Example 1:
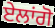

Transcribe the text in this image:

ਏਲਾਂਗੋ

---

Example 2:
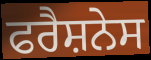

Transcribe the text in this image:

ਫਰੈਸ਼ਨੇਸ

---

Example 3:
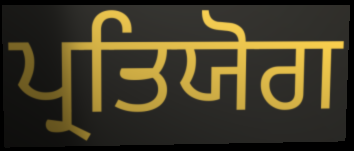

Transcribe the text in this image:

ਪ੍ਰਤਿਯੋਗ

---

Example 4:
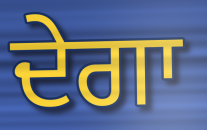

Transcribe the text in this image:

ਦੇਗਾ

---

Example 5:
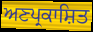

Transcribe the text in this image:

ਅਣਪ੍ਰਕਾਸ਼ਿਤ